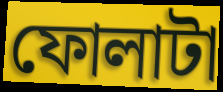
ফোলাটা